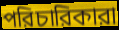
পরিচারিকারা